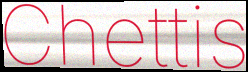
Chettis